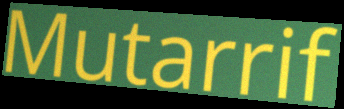
Mutarrif